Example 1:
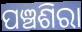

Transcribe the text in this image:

ପଞ୍ଚଶିରା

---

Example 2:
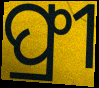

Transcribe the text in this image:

ଫ୍ରୀ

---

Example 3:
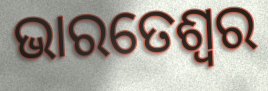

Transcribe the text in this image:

ଭାରତେଶ୍ୱର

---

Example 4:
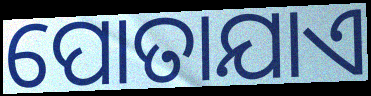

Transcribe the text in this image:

ପୋତାଯାଏ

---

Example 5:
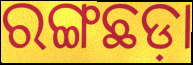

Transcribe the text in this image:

ରଙ୍ଗଛଡ଼ା